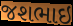
જશભાઇ